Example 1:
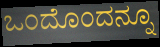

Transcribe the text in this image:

ಒಂದೊಂದನ್ನೂ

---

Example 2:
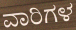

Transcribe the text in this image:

ವಾರಿಗಳ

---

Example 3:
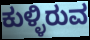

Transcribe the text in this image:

ಕುಳ್ಳಿರುವ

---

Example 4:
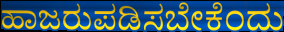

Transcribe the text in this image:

ಹಾಜರುಪಡಿಸಬೇಕೆಂದು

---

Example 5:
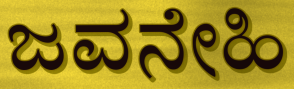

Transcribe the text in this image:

ಜವನೇಹಿ